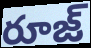
రూజ్